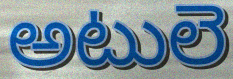
అటులె